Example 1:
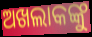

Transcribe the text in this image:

ଅଖଲାକଙ୍କୁ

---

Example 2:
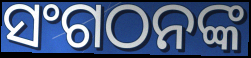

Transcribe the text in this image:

ସଂଗଠନଙ୍କ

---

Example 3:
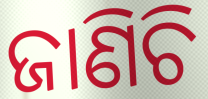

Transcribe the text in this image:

ଜାଣିଚି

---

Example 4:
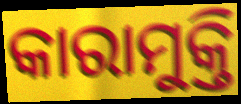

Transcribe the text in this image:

କାରାମୁକ୍ତି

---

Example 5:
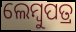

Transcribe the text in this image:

ଲେମ୍ବୁପତ୍ର